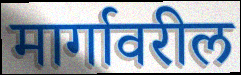
मार्गावरील